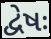
દ્વેષઃ